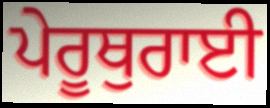
ਪੇਰੂਥੁਰਾਈ